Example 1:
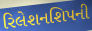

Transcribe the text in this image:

રિલેશનશિપની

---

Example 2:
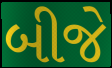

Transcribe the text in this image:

બીજે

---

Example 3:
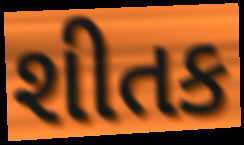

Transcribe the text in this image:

શીતક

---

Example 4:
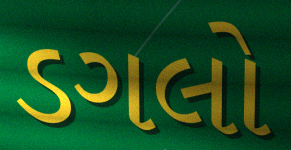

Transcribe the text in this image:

ડગલો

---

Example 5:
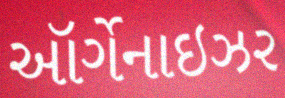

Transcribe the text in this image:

ઑર્ગેનાઇઝર